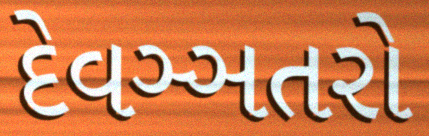
દેવઞ્ઞતરો